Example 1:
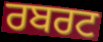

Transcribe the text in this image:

ਰਬਰਟ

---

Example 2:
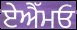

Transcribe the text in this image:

ਏਐੱਮਓ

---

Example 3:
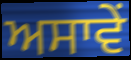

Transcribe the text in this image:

ਅਸਾਵੇਂ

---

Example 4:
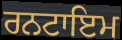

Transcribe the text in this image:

ਰਨਟਾਇਮ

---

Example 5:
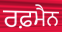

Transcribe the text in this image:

ਰਫ਼ਮੈਨ